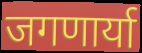
जगणार्या